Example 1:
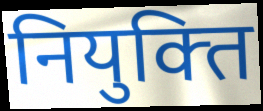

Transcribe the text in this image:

नियुक्‍ति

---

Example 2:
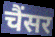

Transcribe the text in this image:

चैंसर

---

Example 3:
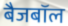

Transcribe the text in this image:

बैजबॉल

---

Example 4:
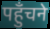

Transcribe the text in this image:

पहुंँचने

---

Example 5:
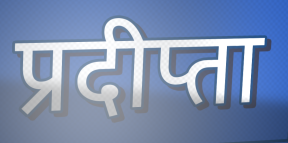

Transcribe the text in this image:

प्रदीप्ता